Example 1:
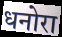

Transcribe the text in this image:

धनोरा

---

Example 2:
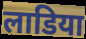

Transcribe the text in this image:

लाडिया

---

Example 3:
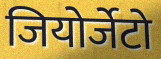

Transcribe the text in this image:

जियोर्जेटो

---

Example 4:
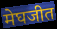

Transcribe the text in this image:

मेघजीत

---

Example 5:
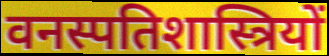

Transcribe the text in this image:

वनस्पतिशास्त्रियों